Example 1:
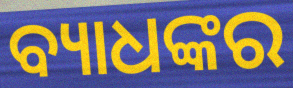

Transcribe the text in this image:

ବ୍ୟାଧଙ୍କର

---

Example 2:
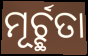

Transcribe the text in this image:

ମୂର୍ଚ୍ଛତା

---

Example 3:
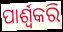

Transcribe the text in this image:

ପାର୍ଶ୍ଵକରି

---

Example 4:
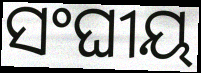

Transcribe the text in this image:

ସଂଘୀୟ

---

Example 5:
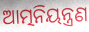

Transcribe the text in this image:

ଆତ୍ମନିୟନ୍ତ୍ରଣ